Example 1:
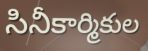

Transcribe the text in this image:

సినీకార్మికుల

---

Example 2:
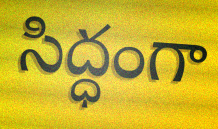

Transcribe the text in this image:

సిద్ధంగా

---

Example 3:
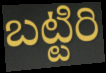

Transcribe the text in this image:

బట్టిరి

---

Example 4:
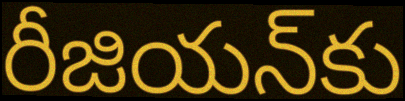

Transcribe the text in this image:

రీజియన్‌కు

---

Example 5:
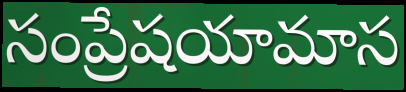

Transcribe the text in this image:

సంప్రేషయామాస